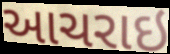
આચરાઇ